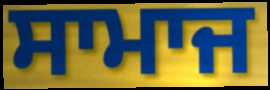
ਸਾਮਾਜ